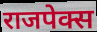
राजपेक्स